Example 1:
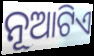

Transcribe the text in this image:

ନୂଆଟିଏ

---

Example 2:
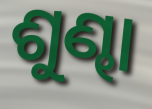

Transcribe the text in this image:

ଶୁଣ୍ଢା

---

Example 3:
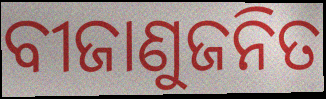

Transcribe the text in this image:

ବୀଜାଣୁଜନିତ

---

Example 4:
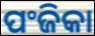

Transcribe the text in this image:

ପଂଜିକା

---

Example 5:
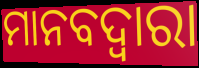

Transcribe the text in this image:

ମାନବଦ୍ୱାରା